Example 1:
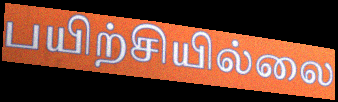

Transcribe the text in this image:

பயிற்சியில்லை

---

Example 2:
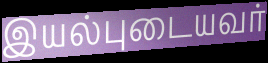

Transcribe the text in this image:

இயல்புடையவர்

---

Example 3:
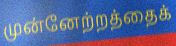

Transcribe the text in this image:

முன்னேற்றத்தைக்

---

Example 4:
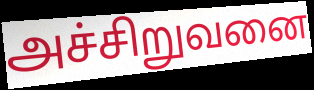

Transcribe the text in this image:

அச்சிறுவனை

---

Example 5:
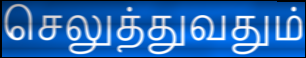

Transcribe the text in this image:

செலுத்துவதும்